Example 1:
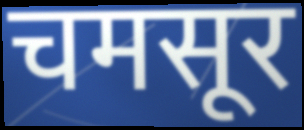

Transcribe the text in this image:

चमसूर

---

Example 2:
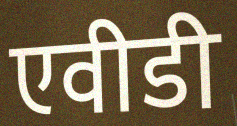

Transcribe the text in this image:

एवीडी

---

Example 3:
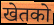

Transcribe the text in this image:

खेतको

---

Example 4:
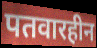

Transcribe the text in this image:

पतवारहीन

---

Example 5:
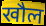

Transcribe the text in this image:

खौल